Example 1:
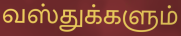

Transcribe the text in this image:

வஸ்துக்களும்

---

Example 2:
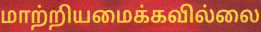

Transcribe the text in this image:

மாற்றியமைக்கவில்லை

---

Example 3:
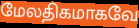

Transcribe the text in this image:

மேலதிகமாகவே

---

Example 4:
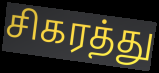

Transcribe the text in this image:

சிகரத்து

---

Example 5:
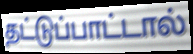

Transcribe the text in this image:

தட்டுப்பாட்டால்